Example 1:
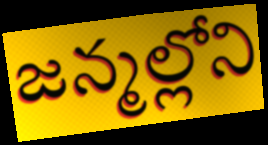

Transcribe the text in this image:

జన్మల్లోని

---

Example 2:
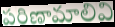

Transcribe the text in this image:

పరిణామాలివి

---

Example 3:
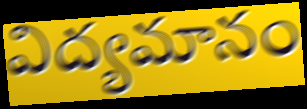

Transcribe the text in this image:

విద్యమానం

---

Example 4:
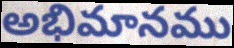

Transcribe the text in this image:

అభిమానము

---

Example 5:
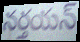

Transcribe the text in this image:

నర్తయన్